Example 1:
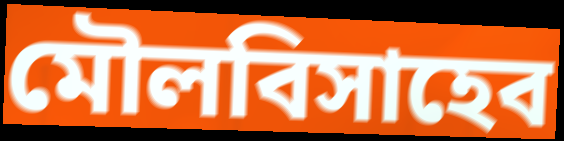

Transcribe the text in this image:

মৌলবিসাহেব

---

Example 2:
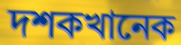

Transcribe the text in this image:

দশকখানেক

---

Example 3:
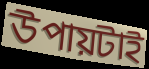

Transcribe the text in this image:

উপায়টাই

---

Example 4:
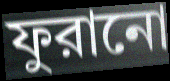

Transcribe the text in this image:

ফুরানো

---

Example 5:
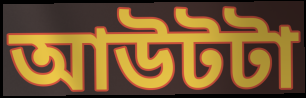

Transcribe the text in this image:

আউটটা